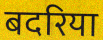
बदरिया